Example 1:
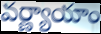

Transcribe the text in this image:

వర్ణ్యాయాం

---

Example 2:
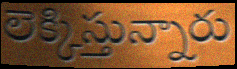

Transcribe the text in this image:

లెక్కిస్తున్నారు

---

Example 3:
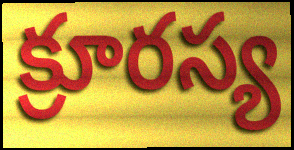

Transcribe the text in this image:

క్రూరస్య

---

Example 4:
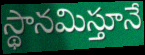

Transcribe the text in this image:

స్థానమిస్తూనే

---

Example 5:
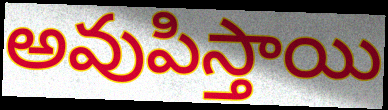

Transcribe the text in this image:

అవుపిస్తాయి